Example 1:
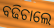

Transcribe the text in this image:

ବଢିଚାଲେ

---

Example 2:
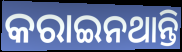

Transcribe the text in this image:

କରାଇନଥାନ୍ତି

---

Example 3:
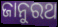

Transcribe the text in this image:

ଜାନୁରଥ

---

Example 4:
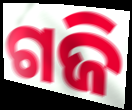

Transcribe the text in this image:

ଗଜି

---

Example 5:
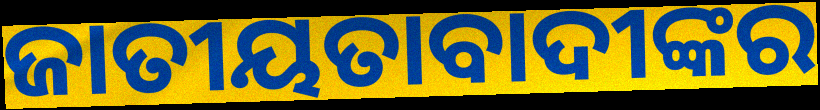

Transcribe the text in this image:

ଜାତୀୟତାବାଦୀଙ୍କର